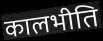
कालभीति